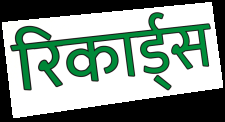
रिकार्ड्स